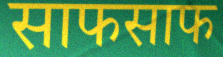
साफसाफ